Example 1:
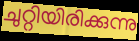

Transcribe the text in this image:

ചുറ്റിയിരിക്കുന്നു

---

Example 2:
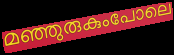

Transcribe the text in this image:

മഞ്ഞുരുകുംപോലെ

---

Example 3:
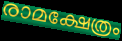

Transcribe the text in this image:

രാമക്ഷേത്രം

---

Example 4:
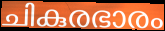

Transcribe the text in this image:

ചികുരഭാരം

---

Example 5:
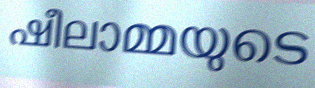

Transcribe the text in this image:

ഷീലാമ്മയുടെ